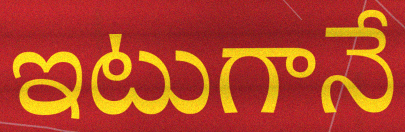
ఇటుగానే